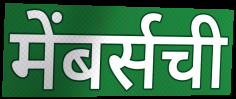
मेंबर्सची